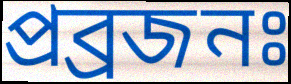
প্ৰব্ৰজনঃ